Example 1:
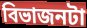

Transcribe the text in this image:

বিভাজনটা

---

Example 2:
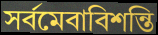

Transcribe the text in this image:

সর্বমেবাবিশন্তি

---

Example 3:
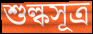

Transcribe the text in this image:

শুল্কসূত্র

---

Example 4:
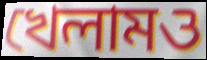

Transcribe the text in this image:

খেলামও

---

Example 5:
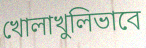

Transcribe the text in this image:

খোলাখুলিভাবে